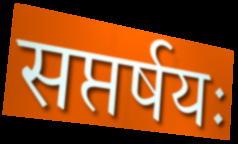
सप्तर्षयः